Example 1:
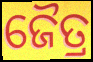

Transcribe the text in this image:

ଜୈତ୍ର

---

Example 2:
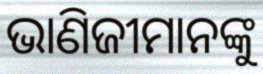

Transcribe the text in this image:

ଭାଣିଜୀମାନଙ୍କୁ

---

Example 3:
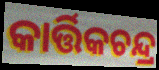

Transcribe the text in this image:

କାର୍ତ୍ତିକଚନ୍ଦ୍ର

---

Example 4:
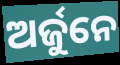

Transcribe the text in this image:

ଅର୍ଜୁନେ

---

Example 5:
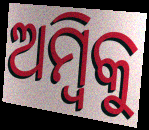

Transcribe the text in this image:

ଅମ୍ବିକୁ